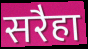
सरैहा